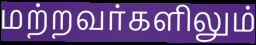
மற்றவர்களிலும்